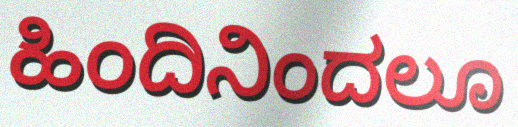
ಹಿಂದಿನಿಂದಲೂ